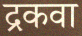
द्रकवा